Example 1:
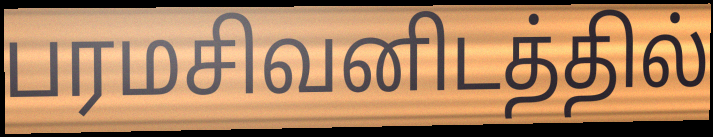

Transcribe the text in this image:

பரமசிவனிடத்தில்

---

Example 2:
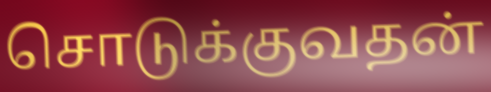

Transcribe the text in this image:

சொடுக்குவதன்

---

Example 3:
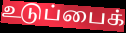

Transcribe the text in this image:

உடுப்பைக்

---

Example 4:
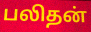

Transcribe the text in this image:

பலிதன்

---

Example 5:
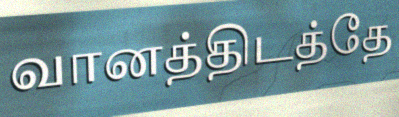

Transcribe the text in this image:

வானத்திடத்தே